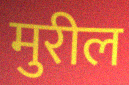
मुरील